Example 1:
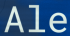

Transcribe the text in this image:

Ale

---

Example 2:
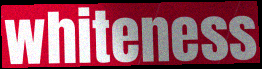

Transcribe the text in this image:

whiteness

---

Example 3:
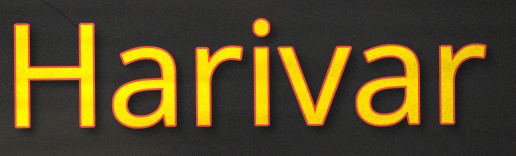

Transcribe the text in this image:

Harivar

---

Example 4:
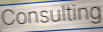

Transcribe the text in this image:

Consulting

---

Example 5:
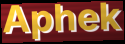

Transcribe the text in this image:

Aphek